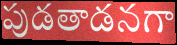
పుడతాడనగా